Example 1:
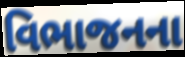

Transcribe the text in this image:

વિભાજનના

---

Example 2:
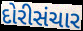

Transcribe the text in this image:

દોરીસંચાર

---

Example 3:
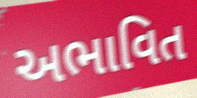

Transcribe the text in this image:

અભાવિત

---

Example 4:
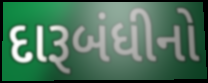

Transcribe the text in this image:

દારૂબંધીનો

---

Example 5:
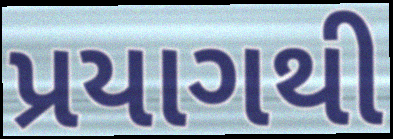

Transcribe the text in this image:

પ્રયાગથી